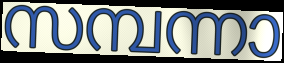
സമ്പന്നാ